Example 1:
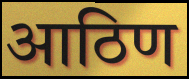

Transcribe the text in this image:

आठिण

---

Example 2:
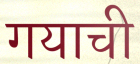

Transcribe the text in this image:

गयाची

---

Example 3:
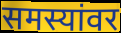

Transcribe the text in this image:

समस्यांवर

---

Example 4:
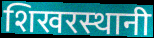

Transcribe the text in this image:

शिखरस्थानी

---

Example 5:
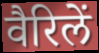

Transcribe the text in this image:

वैरिलें